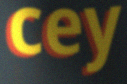
cey